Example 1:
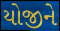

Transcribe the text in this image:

યોજીને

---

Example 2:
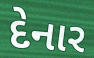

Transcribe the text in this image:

દેનાર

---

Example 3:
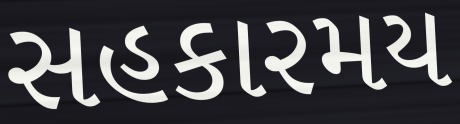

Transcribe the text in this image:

સહકારમય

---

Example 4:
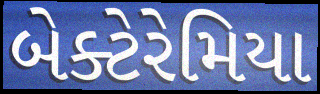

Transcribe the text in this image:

બેક્ટેરેમિયા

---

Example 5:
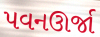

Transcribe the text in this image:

પવનઊર્જા